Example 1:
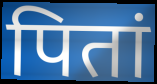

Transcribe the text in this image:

पितां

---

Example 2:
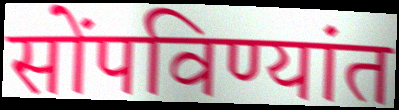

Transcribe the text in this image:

सोंपविण्यांत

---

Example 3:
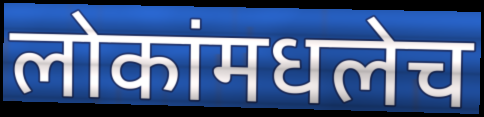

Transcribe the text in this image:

लोकांमधलेच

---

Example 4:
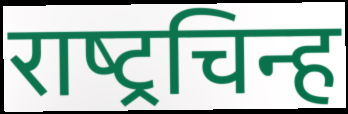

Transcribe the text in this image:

राष्ट्रचिन्ह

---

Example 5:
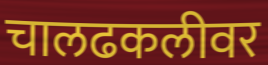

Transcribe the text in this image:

चालढकलीवर